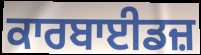
ਕਾਰਬਾਈਡਜ਼